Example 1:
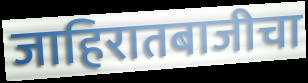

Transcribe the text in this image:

जाहिरातबाजीचा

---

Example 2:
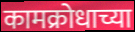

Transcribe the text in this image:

कामक्रोधाच्या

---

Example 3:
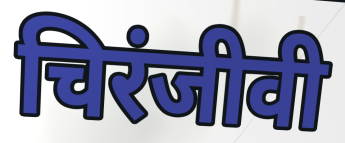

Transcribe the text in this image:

चिरंजीवी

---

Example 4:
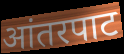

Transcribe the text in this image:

आंतरपाट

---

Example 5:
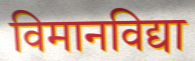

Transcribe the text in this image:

विमानविद्या